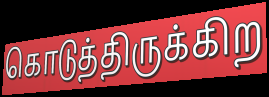
கொடுத்திருக்கிற